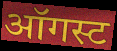
ऑगस्ट